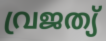
വ്രജത്യ്